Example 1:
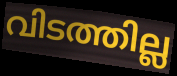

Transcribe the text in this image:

വിടത്തില്ല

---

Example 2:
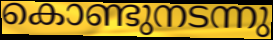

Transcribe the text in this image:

കൊണ്ടുനടന്നു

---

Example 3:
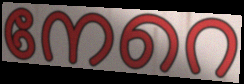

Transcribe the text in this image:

നേറെ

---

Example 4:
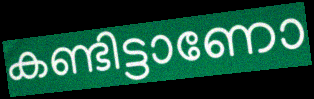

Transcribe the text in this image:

കണ്ടിട്ടാണോ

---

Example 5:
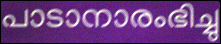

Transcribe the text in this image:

പാടാനാരംഭിച്ചു